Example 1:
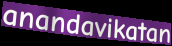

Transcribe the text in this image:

anandavikatan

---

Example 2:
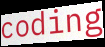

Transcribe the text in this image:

coding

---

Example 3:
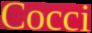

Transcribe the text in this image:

Cocci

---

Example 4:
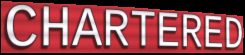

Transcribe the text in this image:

CHARTERED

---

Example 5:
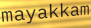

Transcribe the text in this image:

mayakkam